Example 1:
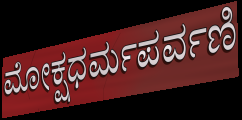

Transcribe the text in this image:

ಮೋಕ್ಷಧರ್ಮಪರ್ವಣಿ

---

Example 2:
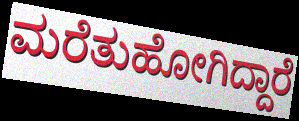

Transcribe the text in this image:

ಮರೆತುಹೋಗಿದ್ದಾರೆ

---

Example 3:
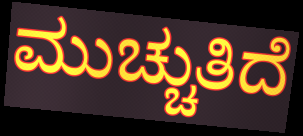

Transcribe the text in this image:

ಮುಚ್ಚುತಿದೆ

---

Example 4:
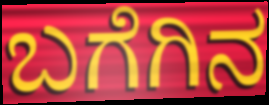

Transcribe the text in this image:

ಬಗೆಗಿನ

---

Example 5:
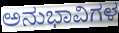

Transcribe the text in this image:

ಅನುಭಾವಿಗಳ